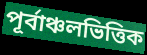
পূর্বাঞ্চলভিত্তিক